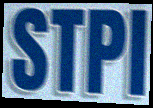
STPI